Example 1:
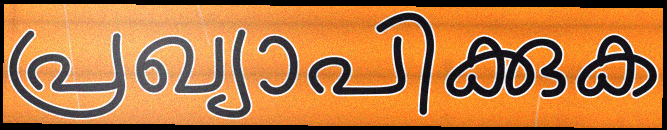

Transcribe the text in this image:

പ്രഖ്യാപിക്കുക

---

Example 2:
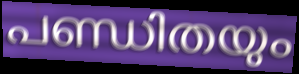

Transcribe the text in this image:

പണ്ഡിതയും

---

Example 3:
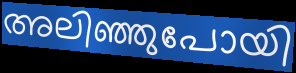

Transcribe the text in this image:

അലിഞ്ഞുപോയി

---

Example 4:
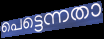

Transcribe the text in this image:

പെട്ടെന്നതാ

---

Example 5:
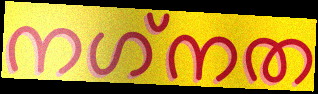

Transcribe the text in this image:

നഗ്‌നത